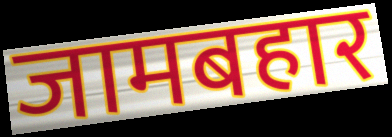
जामबहार